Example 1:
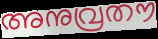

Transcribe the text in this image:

അനുവ്രതൗ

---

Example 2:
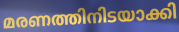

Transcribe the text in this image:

മരണത്തിനിടയാക്കി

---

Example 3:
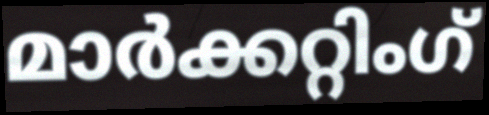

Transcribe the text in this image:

മാർക്കറ്റിംഗ്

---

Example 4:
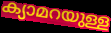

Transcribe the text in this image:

ക്യാമറയുള്ള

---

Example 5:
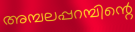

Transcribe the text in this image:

അമ്പലപ്പറമ്പിന്റെ